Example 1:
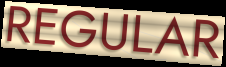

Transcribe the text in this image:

REGULAR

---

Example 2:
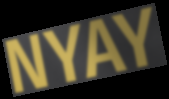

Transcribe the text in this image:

NYAY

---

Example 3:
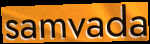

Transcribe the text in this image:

samvada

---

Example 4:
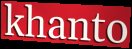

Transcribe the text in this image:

khanto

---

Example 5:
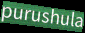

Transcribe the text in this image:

purushula